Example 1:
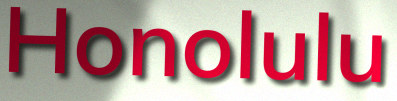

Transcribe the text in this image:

Honolulu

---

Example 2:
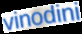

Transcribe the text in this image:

vinodini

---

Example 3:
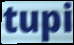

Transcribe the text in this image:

tupi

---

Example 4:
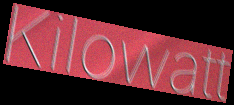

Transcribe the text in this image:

Kilowatt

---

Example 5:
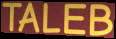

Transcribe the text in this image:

TALEB